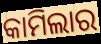
କାମିଲାର